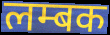
लम्बक